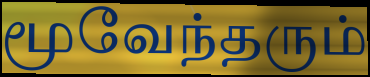
மூவேந்தரும்